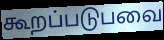
கூறப்படுபவை